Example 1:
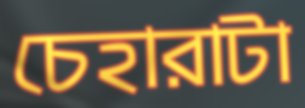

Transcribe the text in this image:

চেহারাটা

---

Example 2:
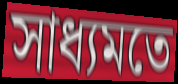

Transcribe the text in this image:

সাধ্যমতে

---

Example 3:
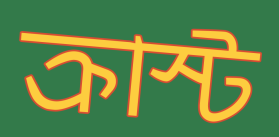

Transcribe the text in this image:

ক্রাস্ট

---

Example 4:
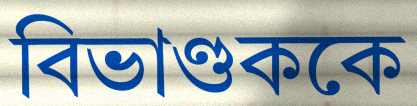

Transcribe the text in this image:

বিভাণ্ডককে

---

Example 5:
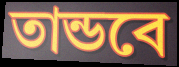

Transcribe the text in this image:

তান্ডবে